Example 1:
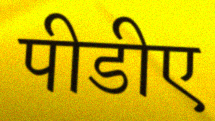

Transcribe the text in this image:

पीडीए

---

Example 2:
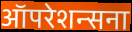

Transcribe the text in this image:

ऑपरेशन्सना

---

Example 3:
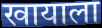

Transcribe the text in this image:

खायाला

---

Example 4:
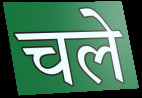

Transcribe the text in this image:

चले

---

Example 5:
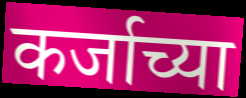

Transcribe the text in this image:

कर्जाच्या